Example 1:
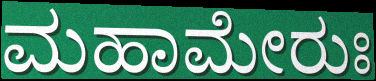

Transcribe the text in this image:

ಮಹಾಮೇರುಃ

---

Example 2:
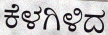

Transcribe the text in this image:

ಕೆಳಗಿಳಿದ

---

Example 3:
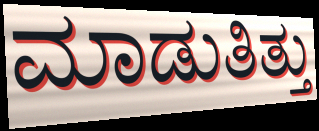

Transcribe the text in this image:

ಮಾಡುತಿತ್ತು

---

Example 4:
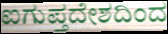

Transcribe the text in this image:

ಐಗುಪ್ತದೇಶದಿಂದ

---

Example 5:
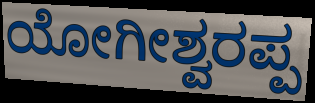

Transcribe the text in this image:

ಯೋಗೀಶ್ವರಪ್ಪ